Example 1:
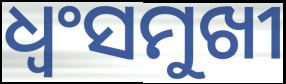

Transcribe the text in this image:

ଧ୍ୱଂସମୁଖୀ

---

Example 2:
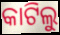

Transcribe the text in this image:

କାଟିଲୁ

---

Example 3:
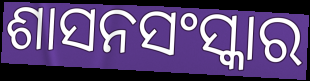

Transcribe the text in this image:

ଶାସନସଂସ୍କାର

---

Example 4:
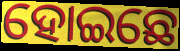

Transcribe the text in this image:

ହୋଇଛେ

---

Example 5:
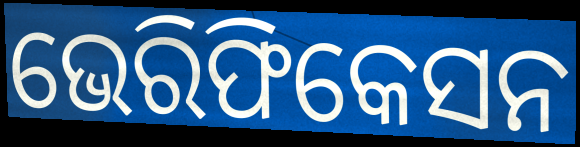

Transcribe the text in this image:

ଭେରିଫିକେସନ